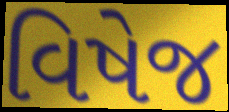
વિષેજ